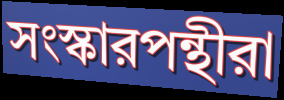
সংস্কারপন্থীরা